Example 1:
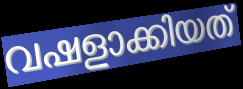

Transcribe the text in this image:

വഷളാക്കിയത്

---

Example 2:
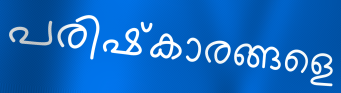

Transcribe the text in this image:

പരിഷ്‌കാരങ്ങളെ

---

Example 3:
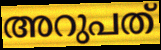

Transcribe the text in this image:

അറുപത്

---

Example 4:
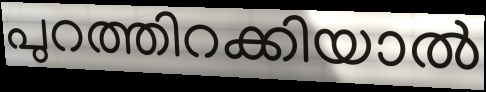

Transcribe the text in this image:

പുറത്തിറക്കിയാൽ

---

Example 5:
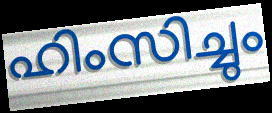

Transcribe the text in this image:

ഹിംസിച്ചും